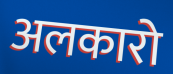
अलकारो